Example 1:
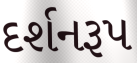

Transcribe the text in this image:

દર્શનરૂપ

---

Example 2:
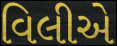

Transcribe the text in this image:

વિલીએ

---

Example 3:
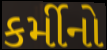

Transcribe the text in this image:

કર્મીનો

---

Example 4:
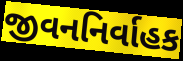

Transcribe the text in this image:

જીવનનિર્વાહક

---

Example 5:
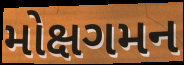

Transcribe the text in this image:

મોક્ષગમન